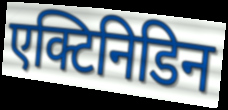
एक्टिनिडिन